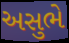
અસુભે